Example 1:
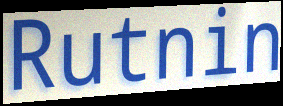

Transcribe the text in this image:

Rutnin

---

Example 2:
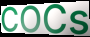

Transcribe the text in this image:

COCs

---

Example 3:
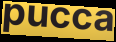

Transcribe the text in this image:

pucca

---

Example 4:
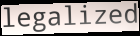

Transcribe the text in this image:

legalized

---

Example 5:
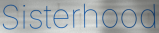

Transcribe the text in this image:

Sisterhood